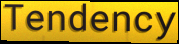
Tendency